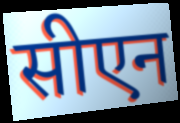
सीएन